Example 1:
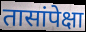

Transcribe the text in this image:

तासांपेक्षा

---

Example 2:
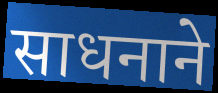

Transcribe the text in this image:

साधनाने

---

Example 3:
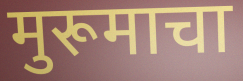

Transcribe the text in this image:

मुरूमाचा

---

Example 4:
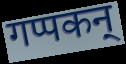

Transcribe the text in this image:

गप्पकन्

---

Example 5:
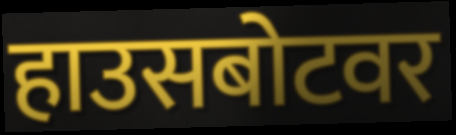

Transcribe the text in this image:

हाउसबोटवर